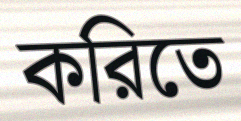
করিতে